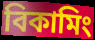
বিকামিং